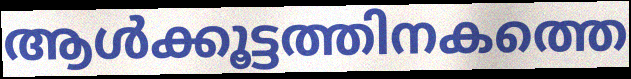
ആൾക്കൂട്ടത്തിനകത്തെ